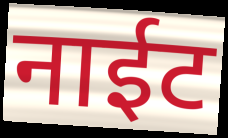
नाईट